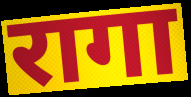
रागा